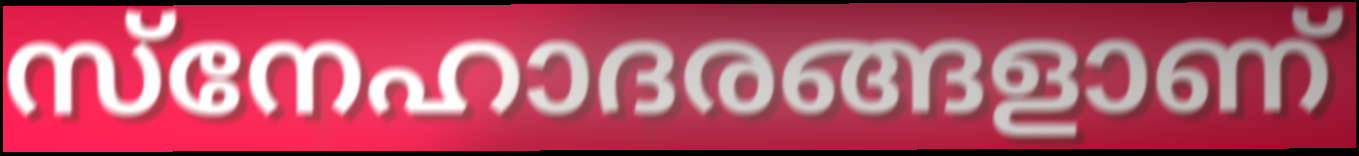
സ്നേഹാദരങ്ങളാണ്